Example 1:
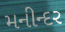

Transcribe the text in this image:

મનીન્દર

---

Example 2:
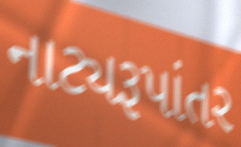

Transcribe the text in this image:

નાટ્યરૂપાંતર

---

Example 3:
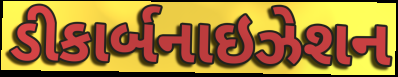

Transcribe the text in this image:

ડીકાર્બનાઇઝેશન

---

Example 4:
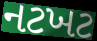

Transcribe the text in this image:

નટખટ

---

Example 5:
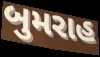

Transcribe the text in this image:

બુમરાહ